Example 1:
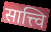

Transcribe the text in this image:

सात्त्वि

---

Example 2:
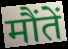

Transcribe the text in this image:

मौंतें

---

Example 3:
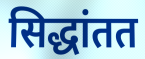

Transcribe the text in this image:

सिद्धांतत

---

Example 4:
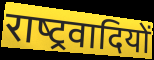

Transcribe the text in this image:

राष्ट्रवादियों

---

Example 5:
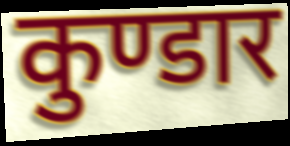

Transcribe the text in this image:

कुण्डार